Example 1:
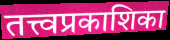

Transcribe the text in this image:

तत्त्वप्रकाशिका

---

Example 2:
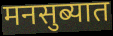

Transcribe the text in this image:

मनसुब्यात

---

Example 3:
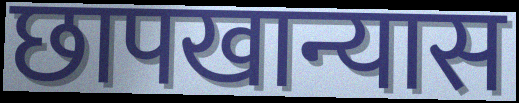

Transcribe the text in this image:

छापखान्यास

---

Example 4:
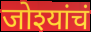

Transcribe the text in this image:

जोश्यांचं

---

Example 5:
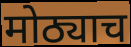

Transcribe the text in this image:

मोठ्याच